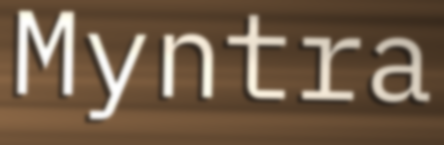
Myntra